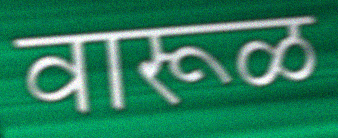
वारूळ